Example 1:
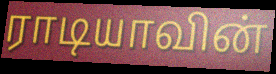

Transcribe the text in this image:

ராடியாவின்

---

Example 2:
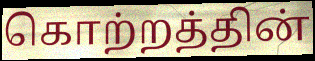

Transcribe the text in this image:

கொற்றத்தின்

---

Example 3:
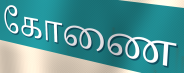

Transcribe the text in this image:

கோணை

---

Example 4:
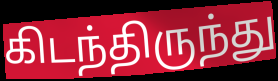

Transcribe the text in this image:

கிடந்திருந்து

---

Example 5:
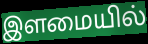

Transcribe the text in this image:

இளமையில்